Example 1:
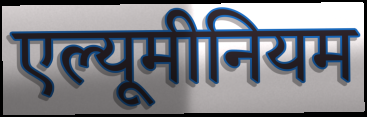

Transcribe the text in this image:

एल्‍यूमीनियम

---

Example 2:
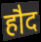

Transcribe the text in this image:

हौद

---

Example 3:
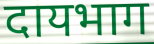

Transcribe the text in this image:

दायभाग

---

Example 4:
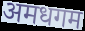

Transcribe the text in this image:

अमधगम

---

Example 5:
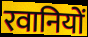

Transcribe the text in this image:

रवानियों